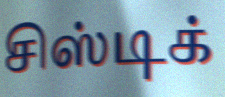
சிஸ்டிக்